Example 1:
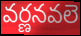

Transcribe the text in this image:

వర్ణనవలె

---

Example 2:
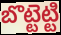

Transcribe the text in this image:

బొట్టెట్టి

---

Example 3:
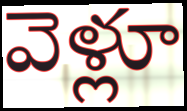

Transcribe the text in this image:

వెళ్లూ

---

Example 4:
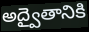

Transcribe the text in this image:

అద్వైతానికి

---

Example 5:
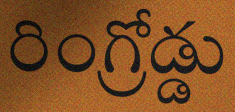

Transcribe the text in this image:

రింగ్రోడ్డు